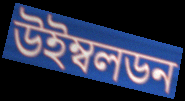
উইম্বলডন